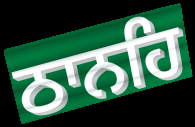
ਠਾਨਹਿ